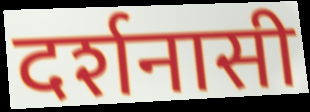
दर्शनासी